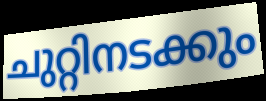
ചുറ്റിനടക്കും